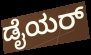
ಡೈಯರ್